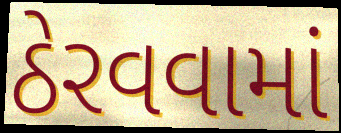
ઠેરવવામાં